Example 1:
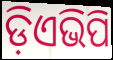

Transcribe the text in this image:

ଡ଼ିଏଭିପି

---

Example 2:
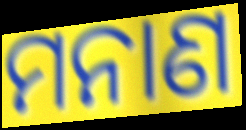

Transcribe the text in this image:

ମନାଣ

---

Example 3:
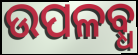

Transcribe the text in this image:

ଉପଳବ୍ଧ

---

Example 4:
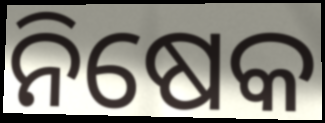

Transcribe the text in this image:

ନିଷେକ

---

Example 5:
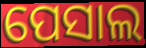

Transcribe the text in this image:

ପେସାଲ